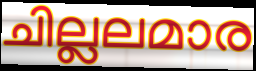
ചില്ലലമാര